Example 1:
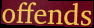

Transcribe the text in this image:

offends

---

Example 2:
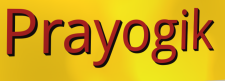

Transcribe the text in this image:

Prayogik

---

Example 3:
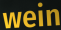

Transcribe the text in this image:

wein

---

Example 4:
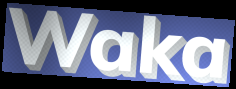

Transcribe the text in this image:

Waka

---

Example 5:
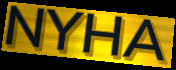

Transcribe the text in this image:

NYHA